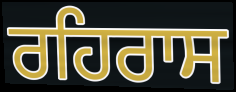
ਰਹਿਰਾਸ